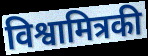
विश्वामित्रकी